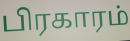
பிரகாரம்